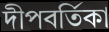
দীপবর্তিকা